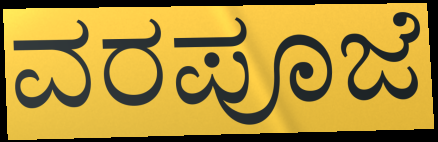
ವರಪೂಜೆ